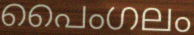
പൈംഗലം